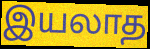
இயலாத